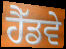
ਹੈੱਡਵੇ